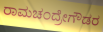
ರಾಮಚಂದ್ರೇಗೌಡರ